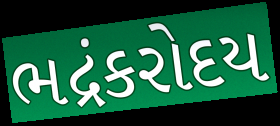
ભદ્રંકરોદય